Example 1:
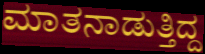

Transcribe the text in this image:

ಮಾತನಾಡುತ್ತಿದ್ದ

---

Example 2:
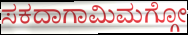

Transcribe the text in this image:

ಸಕದಾಗಾಮಿಮಗ್ಗೋ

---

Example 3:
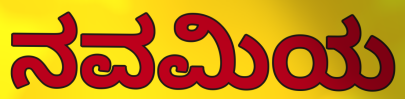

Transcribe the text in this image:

ನವಮಿಯ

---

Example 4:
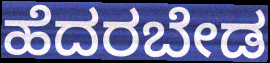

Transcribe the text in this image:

ಹೆದರಬೇಡ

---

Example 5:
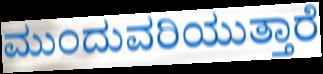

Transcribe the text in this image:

ಮುಂದುವರಿಯುತ್ತಾರೆ